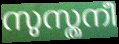
സുസ്തനീ